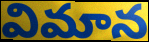
విమాన